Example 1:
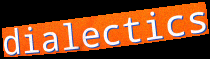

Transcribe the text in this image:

dialectics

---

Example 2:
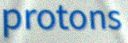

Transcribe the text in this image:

protons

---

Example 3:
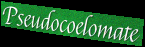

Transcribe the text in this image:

Pseudocoelomate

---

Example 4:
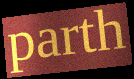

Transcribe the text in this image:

parth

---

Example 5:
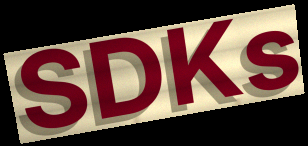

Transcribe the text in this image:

SDKs